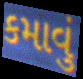
કમાવું